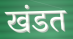
खंडत